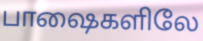
பாஷைகளிலே